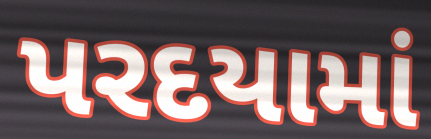
પરદયામાં